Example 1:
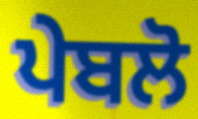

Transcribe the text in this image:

ਪੇਬਲੋ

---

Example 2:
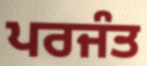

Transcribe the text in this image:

ਪਰਜੰਤ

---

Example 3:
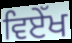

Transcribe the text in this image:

ਵਿਏੱਖ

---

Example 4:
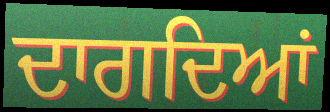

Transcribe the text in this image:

ਦਾਗਦਿਆਂ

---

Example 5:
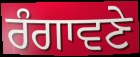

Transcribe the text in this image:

ਰੰਗਾਵਣੇ